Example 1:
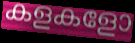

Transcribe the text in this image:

കളകളോ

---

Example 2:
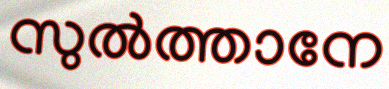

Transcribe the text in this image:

സുൽത്താനേ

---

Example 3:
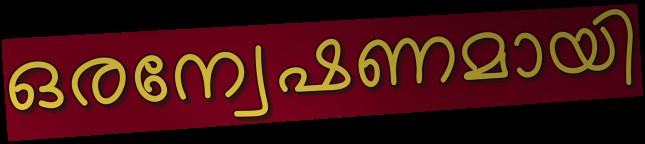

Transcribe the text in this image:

ഒരന്വേഷണമായി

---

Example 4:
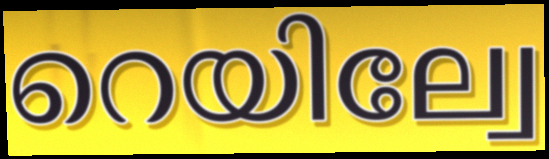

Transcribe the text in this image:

റെയില്വേ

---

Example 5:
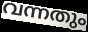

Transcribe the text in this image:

വന്നതും